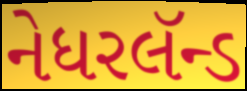
નેધરલૅન્ડ